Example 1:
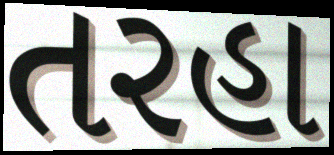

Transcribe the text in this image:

તરહા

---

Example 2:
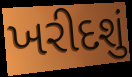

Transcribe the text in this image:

ખરીદશું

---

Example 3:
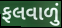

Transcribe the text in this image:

ફલવાળું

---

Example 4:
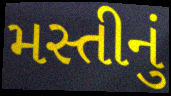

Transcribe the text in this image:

મસ્તીનું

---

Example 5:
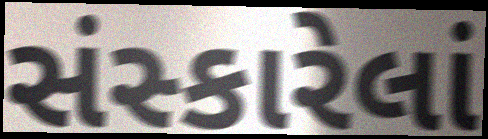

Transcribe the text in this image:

સંસ્કારેલાં